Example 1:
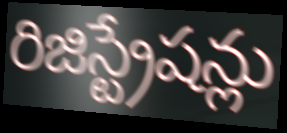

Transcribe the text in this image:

రిజిస్ట్రేషన్లు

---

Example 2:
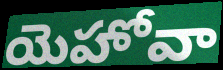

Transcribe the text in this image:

యెహోవా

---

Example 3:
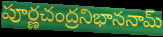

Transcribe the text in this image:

పూర్ణచంద్రనిభాననామ్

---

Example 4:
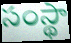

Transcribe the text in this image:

సంస్థా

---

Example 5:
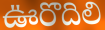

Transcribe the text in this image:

ఊరొదిలి